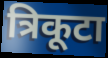
त्रिकूटा